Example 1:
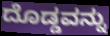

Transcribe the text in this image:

ದೊಡ್ಡವನ್ನು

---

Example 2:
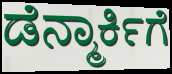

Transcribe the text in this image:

ಡೆನ್ಮಾರ್ಕಿಗೆ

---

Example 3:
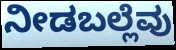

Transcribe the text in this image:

ನೀಡಬಲ್ಲೆವು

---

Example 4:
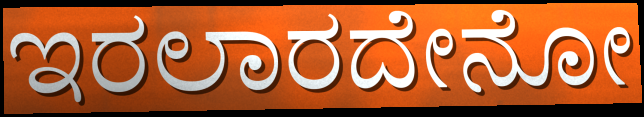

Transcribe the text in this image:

ಇರಲಾರದೇನೋ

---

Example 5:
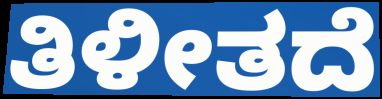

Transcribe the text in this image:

ತಿಳೀತದೆ